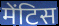
मेंटिस